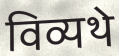
विव्यथे